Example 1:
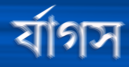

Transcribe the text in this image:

র্যাগস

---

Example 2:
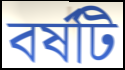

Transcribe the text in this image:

বর্ষটি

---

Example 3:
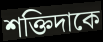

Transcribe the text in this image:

শক্তিদাকে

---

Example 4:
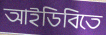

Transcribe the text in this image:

আইডিবিতে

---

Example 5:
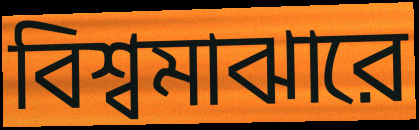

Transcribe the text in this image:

বিশ্বমাঝারে